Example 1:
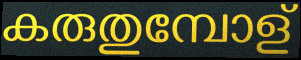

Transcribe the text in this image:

കരുതുമ്പോള്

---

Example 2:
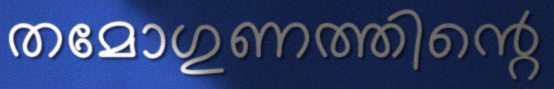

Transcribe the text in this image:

തമോഗുണത്തിന്റെ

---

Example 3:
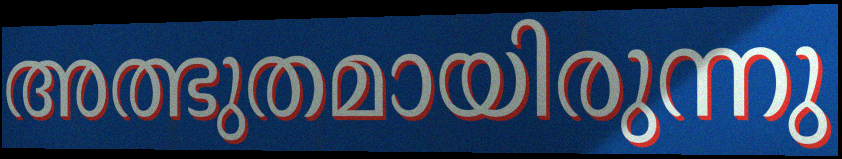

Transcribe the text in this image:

അത്ഭുതമായിരുന്നു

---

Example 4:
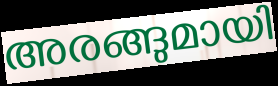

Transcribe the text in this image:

അരങ്ങുമായി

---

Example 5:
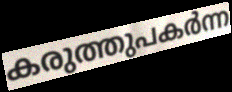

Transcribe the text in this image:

കരുത്തുപകർന്ന